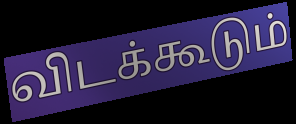
விடக்கூடும்